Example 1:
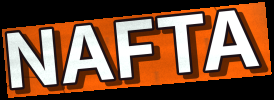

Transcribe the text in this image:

NAFTA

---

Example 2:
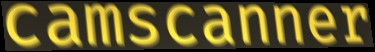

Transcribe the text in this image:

camscanner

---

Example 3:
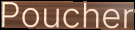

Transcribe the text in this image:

Poucher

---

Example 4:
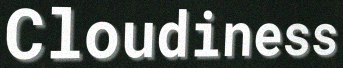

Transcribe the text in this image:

Cloudiness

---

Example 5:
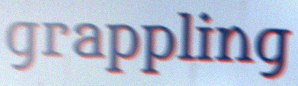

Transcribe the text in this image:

grappling